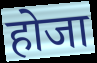
होजा